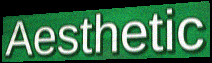
Aesthetic